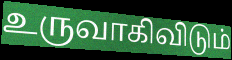
உருவாகிவிடும்